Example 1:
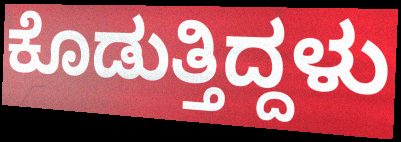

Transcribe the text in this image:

ಕೊಡುತ್ತಿದ್ದಳು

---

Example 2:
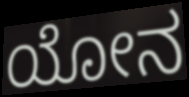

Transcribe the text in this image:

ಯೋನ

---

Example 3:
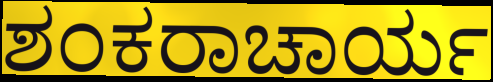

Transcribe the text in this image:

ಶಂಕರಾಚಾರ್ಯ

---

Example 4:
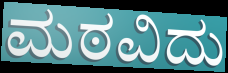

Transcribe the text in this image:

ಮಠವಿದು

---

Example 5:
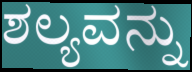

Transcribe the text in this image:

ಶಲ್ಯವನ್ನು